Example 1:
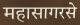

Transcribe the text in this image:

महासागरसे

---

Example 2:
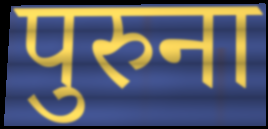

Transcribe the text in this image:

पुरुना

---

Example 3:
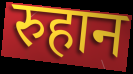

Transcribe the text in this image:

रुहान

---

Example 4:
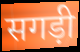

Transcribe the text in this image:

सगड़ी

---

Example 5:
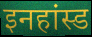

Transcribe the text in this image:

इनहांस्ड